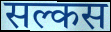
सल्कस